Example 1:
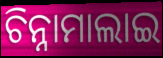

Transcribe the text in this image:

ଚିନ୍ନାମାଲାଇ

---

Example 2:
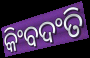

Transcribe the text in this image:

କିଂବଦଂତି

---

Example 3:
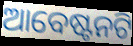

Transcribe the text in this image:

ଆବେଷ୍ଟନଟି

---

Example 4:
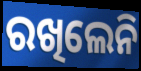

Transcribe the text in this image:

ରଖିଲେନି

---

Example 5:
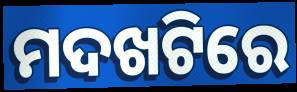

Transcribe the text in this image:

ମଦଖଟିରେ